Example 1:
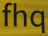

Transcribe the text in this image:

fhq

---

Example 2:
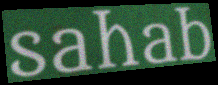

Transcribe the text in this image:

sahab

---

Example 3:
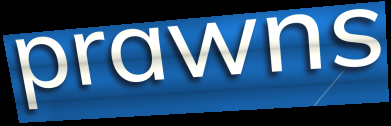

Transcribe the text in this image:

prawns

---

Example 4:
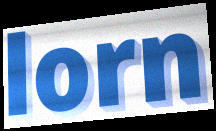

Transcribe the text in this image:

lorn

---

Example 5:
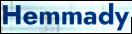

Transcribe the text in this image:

Hemmady